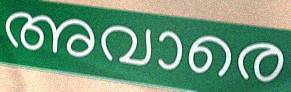
അവാരെ